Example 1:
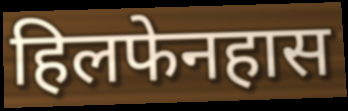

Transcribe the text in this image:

हिलफेनहास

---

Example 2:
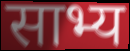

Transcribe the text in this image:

साभ्य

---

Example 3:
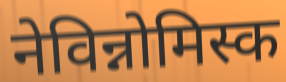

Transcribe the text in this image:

नेविन्नोमिस्क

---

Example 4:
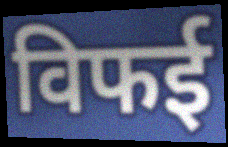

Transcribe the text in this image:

विफई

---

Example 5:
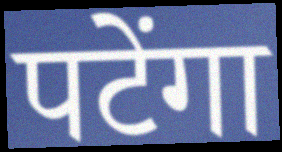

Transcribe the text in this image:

पटेंगा